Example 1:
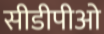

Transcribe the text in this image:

सीडीपीओ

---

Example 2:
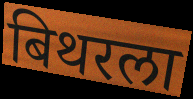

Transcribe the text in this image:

बिथरला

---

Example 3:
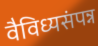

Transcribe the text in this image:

वैविध्यसंपन्न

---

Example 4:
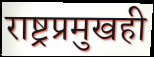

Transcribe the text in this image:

राष्ट्रप्रमुखही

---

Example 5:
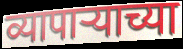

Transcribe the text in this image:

व्यापाऱ्याच्या